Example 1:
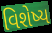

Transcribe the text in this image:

વિશેષ્ય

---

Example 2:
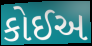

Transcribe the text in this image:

કોઈઅ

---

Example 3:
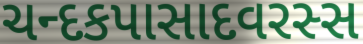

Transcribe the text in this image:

ચન્દકપાસાદવરસ્સ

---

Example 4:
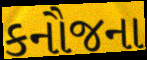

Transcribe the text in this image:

કનૌજના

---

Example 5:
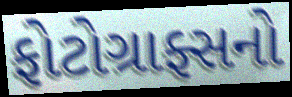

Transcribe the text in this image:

ફોટોગ્રાફ્સનો